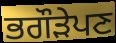
ਭਗੌੜੇਪਣ